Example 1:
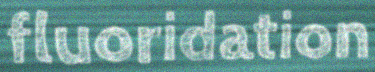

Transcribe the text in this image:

fluoridation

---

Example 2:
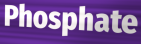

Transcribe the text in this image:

Phosphate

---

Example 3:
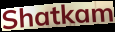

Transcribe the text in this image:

Shatkam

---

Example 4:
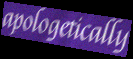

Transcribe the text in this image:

apologetically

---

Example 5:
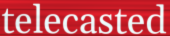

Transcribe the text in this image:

telecasted